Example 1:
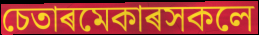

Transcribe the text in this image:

চেতাৰমেকাৰসকলে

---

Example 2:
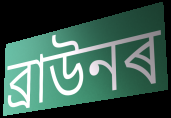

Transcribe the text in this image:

ব্ৰাউনৰ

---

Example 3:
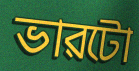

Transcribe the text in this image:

ভাৱটো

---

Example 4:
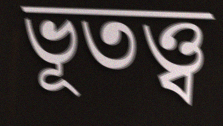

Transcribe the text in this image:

ভূতত্ত্ব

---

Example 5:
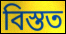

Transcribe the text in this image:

বিস্তত